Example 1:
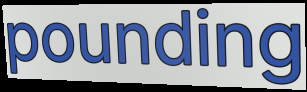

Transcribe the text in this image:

pounding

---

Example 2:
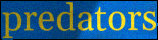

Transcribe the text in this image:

predators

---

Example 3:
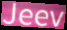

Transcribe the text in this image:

Jeev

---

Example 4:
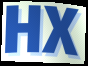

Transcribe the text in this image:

HX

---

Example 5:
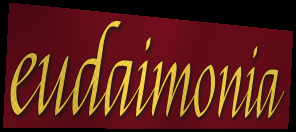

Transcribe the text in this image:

eudaimonia